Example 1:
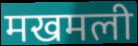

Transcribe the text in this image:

मखमली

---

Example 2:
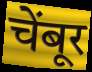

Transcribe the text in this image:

चेंबूर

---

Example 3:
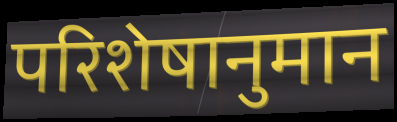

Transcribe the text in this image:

परिशेषानुमान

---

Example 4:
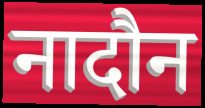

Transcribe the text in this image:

नादौन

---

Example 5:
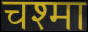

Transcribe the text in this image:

चश्मा